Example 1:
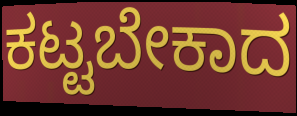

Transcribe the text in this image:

ಕಟ್ಟಬೇಕಾದ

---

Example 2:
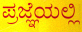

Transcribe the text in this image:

ಪ್ರಜ್ಞೆಯಲ್ಲಿ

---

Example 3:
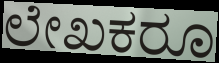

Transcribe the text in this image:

ಲೇಖಕರೂ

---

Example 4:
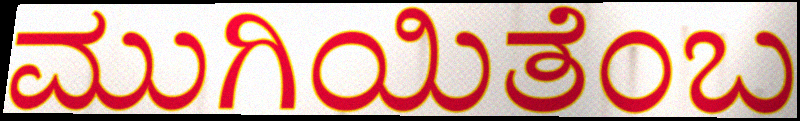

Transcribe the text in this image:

ಮುಗಿಯಿತೆಂಬ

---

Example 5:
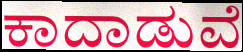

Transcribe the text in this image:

ಕಾದಾಡುವೆ